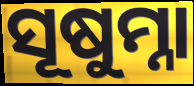
ସୂଷୁମ୍ନା